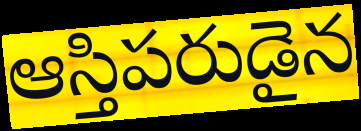
ఆస్తిపరుడైన